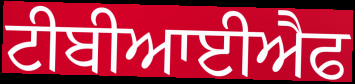
ਟੀਬੀਆਈਐਫ